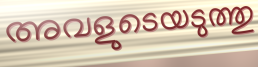
അവളുടെയടുത്തു